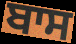
ਬਾਸ